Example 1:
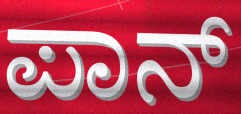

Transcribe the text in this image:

ಪಾನ್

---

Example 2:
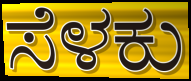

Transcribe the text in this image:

ಸೆಳಕು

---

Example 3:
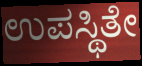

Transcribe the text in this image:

ಉಪಸ್ಥಿತೇ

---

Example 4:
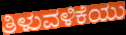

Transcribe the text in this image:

ತಿಳುವಳಿಕೆಯು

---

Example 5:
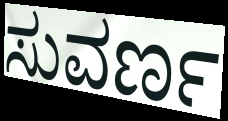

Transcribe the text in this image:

ಸುವರ್ಣ